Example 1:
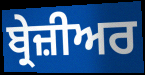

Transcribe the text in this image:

ਬ੍ਰੇਜ਼ੀਅਰ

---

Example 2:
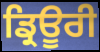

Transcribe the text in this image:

ਡ੍ਰਿਊਰੀ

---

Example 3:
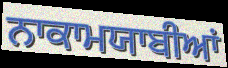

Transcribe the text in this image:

ਨਾਕਾਮਯਾਬੀਆਂ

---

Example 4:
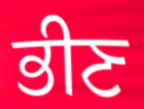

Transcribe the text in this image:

ਭੀਣ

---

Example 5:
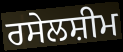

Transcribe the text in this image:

ਰਸੇਲਸ਼ੀਮ